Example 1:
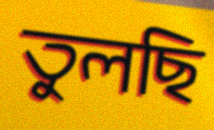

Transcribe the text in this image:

তুলছি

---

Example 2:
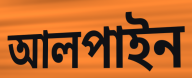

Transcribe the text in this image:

আলপাইন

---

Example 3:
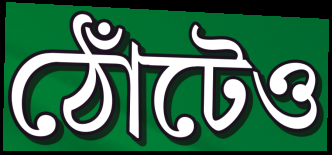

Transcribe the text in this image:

ঠোঁটেও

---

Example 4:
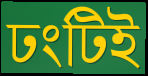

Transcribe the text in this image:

ঢংটিই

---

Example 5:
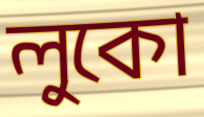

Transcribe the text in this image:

লুকো